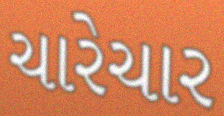
ચારેચાર